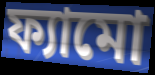
ফ্যামো